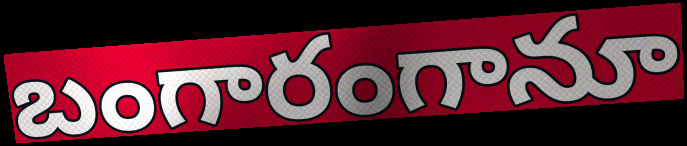
బంగారంగానూ